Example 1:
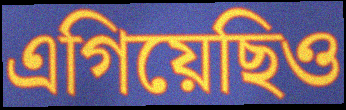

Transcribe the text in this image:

এগিয়েছিও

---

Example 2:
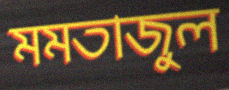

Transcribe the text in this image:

মমতাজুল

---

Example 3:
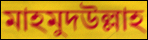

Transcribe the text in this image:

মাহমুদউল্লাহ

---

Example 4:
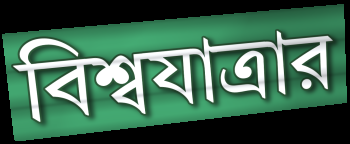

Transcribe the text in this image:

বিশ্বযাত্রার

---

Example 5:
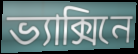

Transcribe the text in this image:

ভ্যাক্সিনে